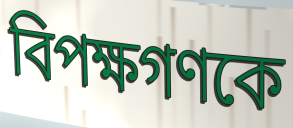
বিপক্ষগণকে